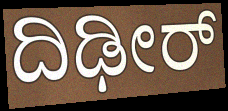
ದಿಢೀರ್